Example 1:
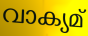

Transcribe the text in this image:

വാക്യമ്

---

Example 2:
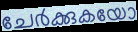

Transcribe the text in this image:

ചേർക്കുകയോ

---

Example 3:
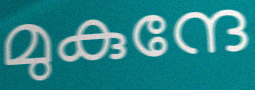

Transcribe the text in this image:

മുകുന്ദേ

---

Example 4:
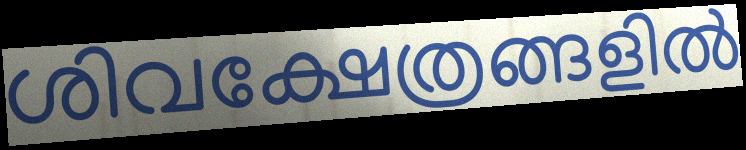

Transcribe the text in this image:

ശിവക്ഷേത്രങ്ങളിൽ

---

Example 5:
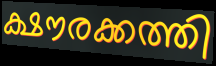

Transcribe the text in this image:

ക്ഷൗരക്കത്തി